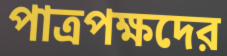
পাত্রপক্ষদের